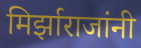
मिर्झाराजांनी